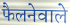
फैलनेवाले